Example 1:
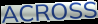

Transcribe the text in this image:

ACROSS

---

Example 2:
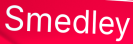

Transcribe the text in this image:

Smedley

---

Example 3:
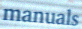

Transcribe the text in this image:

manuals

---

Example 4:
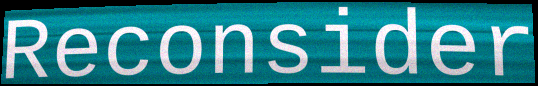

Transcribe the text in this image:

Reconsider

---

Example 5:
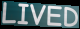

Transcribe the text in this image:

LIVED